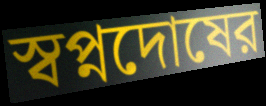
স্বপ্নদোষের